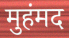
मुहंमद